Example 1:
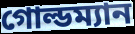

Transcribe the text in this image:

গোল্ডম্যান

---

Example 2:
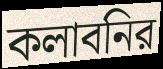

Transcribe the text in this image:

কলাবনির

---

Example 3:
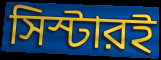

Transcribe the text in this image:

সিস্টারই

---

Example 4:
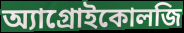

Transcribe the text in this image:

অ্যাগ্রোইকোলজি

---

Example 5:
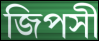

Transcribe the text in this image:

জিপসী